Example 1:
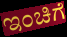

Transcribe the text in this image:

ಇಂಚಿಗೆ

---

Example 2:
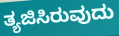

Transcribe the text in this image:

ತ್ಯಜಿಸಿರುವುದು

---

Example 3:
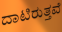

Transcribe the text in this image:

ದಾಟಿರುತ್ತವೆ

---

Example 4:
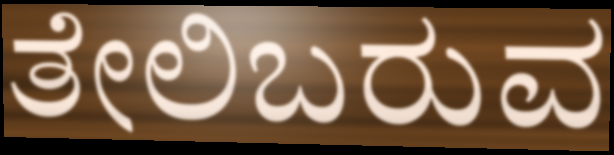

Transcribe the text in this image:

ತೇಲಿಬರುವ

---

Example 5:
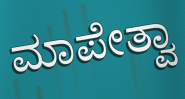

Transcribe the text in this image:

ಮಾಪೇತ್ವಾ